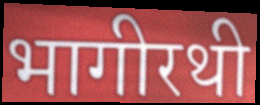
भागीरथी